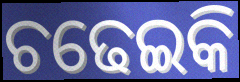
ଚଢେଇକି